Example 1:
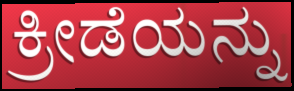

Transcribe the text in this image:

ಕ್ರೀಡೆಯನ್ನು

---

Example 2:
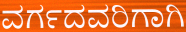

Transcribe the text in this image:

ವರ್ಗದವರಿಗಾಗಿ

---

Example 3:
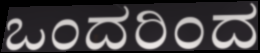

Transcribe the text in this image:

ಒಂದರಿಂದ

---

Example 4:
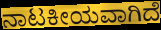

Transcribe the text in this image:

ನಾಟಕೀಯವಾಗಿದೆ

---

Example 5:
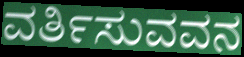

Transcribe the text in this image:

ವರ್ತಿಸುವವನ